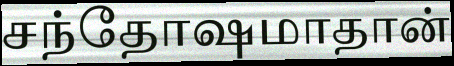
சந்தோஷமாதான்